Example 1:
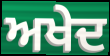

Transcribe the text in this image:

ਅਖੇਦ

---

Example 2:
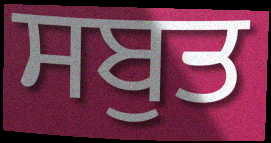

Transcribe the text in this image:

ਸਬੁਤ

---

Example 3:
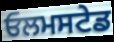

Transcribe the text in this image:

ਓਲਮਸਟੇਡ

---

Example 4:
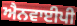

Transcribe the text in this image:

ਐਨਵਾਈਪੀ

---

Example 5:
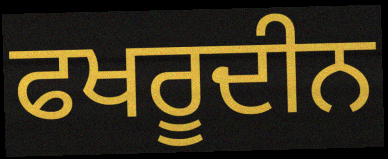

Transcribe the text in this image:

ਫਖਰੂਦੀਨ